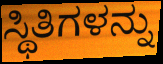
ಸ್ಥಿತಿಗಳನ್ನು